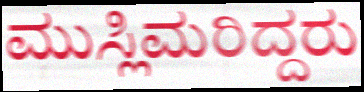
ಮುಸ್ಲಿಮರಿದ್ದರು